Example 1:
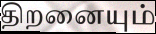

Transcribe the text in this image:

திறனையும்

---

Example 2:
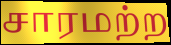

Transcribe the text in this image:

சாரமற்ற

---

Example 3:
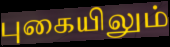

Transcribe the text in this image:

புகையிலும்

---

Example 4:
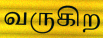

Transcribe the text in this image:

வருகிற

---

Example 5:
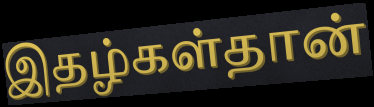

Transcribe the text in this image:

இதழ்கள்தான்